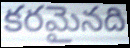
కరమైనది